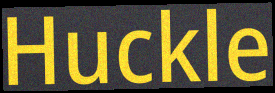
Huckle